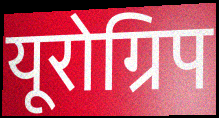
यूरोग्रिप